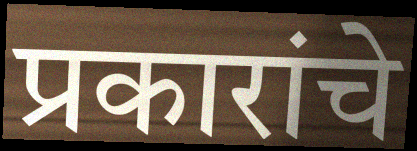
प्रकारांचे